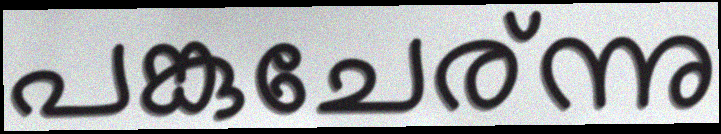
പങ്കുചേര്ന്നു